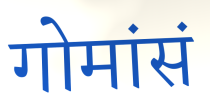
गोमांसं